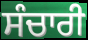
ਸੰਚਾਰੀ